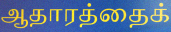
ஆதாரத்தைக்